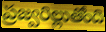
ప్రజ్వరిల్లుతోంది